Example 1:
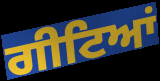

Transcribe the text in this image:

ਗੀਟਿਆਂ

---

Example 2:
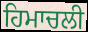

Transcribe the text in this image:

ਹਿਮਾਚਲੀ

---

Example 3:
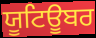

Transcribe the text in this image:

ਯੂਟਿਊਬਰ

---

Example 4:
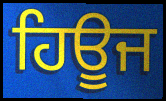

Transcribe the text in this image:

ਹਿਊਜ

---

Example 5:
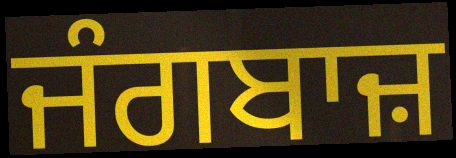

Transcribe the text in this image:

ਜੰਗਬਾਜ਼